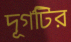
দূর্গটির